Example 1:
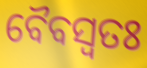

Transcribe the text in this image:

ବୈବସ୍ଵତଃ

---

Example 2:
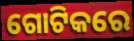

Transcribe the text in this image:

ଗୋଟିକରେ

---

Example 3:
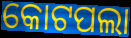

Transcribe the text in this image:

କୋଟପଲା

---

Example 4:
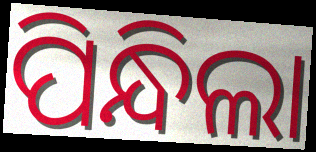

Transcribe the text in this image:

ପିନ୍ଧିଲା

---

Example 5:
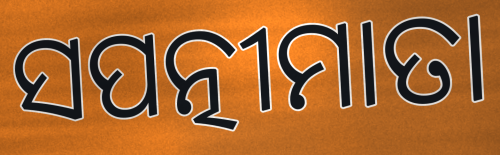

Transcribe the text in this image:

ସପତ୍ନୀମାତା